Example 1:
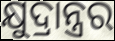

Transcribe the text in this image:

କ୍ଷୁଦ୍ରାନ୍ତ୍ରର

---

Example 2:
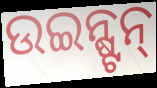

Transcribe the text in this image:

ଉଇନ୍ଷ୍ଟନ୍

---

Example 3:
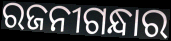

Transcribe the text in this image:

ରଜନୀଗନ୍ଧାର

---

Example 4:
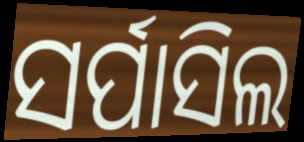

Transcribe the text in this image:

ସର୍ପାସିଲ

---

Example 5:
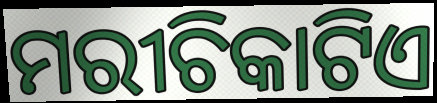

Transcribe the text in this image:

ମରୀଚିକାଟିଏ